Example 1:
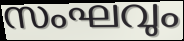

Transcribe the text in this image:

സംഘവും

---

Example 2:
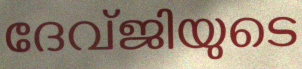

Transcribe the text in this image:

ദേവ്ജിയുടെ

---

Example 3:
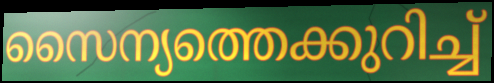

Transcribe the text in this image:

സൈന്യത്തെക്കുറിച്ച്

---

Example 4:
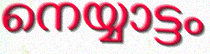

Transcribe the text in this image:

നെയ്യാട്ടം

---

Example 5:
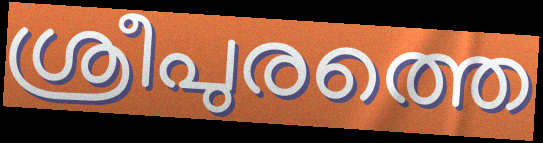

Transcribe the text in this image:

ശ്രീപുരത്തെ